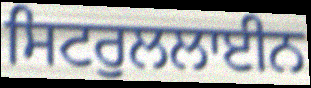
ਸਿਟਰੁਲਲਾਈਨ